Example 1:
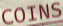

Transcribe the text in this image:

COINS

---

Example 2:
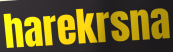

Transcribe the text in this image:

harekrsna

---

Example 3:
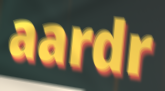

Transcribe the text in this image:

aardr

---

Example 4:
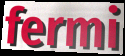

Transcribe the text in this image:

fermi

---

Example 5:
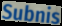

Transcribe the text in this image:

Subnis